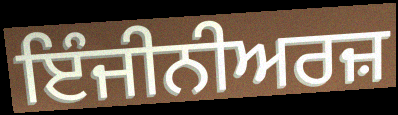
ਇੰਜੀਨੀਅਰਜ਼